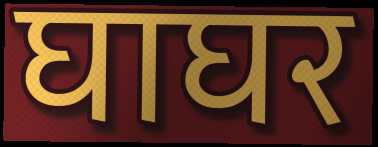
घाघर